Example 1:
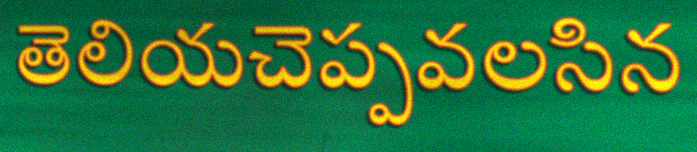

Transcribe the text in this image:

తెలియచెప్పవలసిన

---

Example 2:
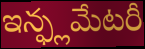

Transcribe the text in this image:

ఇన్ఫ్లమేటరీ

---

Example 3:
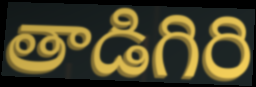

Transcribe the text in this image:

తాడిగిరి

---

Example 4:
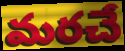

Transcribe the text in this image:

మరచే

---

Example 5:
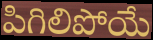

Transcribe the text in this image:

పిగిలిపోయే